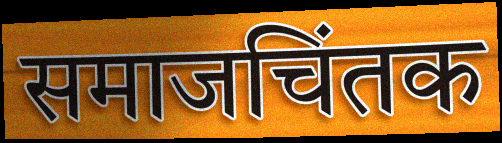
समाजचिंतक